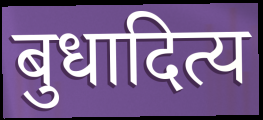
बुधादित्य